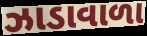
ઝાડાવાળા